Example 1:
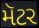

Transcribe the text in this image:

મૅટર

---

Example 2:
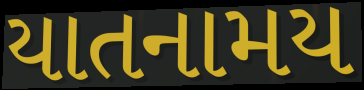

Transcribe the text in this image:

યાતનામય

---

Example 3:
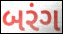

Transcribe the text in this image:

બરંગ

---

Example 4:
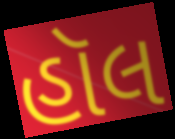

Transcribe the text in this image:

હૉલ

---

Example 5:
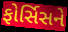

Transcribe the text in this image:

ફોર્સિસને